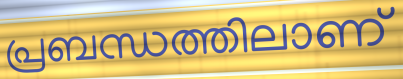
പ്രബന്ധത്തിലാണ്